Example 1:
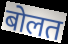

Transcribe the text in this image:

बोलत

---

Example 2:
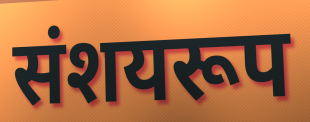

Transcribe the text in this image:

संशयरूप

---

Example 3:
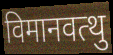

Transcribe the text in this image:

विमानवत्थु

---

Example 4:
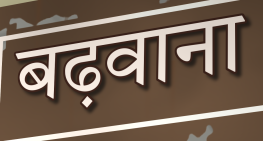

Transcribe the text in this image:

बढ़वाना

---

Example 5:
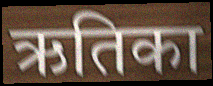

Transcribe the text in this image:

ऋतिका